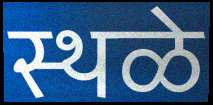
स्थळे